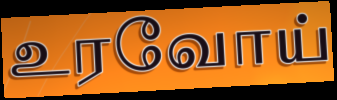
உரவோய்